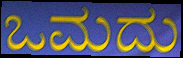
ಒಮದು